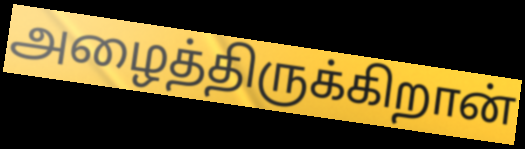
அழைத்திருக்கிறான்